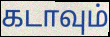
கடாவும்